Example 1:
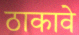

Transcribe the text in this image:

ठाकावे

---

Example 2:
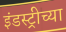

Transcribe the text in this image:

इंडस्ट्रीच्या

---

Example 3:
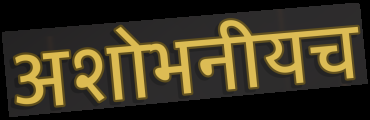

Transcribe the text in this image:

अशोभनीयच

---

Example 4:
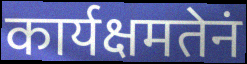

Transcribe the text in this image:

कार्यक्षमतेनं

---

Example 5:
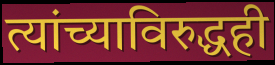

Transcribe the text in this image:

त्यांच्याविरुद्धही